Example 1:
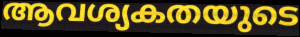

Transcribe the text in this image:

ആവശ്യകതയുടെ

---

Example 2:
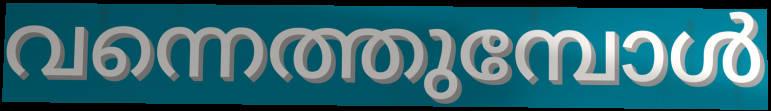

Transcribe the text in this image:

വന്നെത്തുമ്പോൾ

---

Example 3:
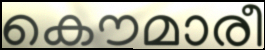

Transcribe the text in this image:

കൌമാരീ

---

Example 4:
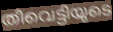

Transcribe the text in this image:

തീവെട്ടിയുടെ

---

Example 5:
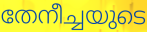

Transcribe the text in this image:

തേനീച്ചയുടെ